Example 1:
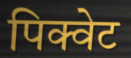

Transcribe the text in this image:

पिक्वेट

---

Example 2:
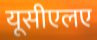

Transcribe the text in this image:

यूसीएलए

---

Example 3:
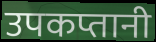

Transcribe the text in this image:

उपकप्तानी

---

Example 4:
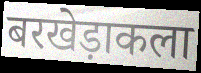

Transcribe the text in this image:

बरखेड़ाकला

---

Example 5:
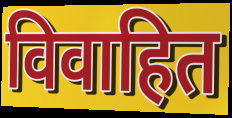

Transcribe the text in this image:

विवाहित